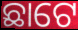
ଛାଟେ